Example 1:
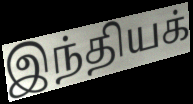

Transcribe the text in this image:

இந்தியக்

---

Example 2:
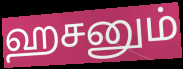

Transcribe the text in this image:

ஹசனும்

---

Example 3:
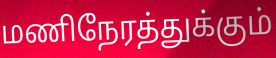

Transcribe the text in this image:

மணிநேரத்துக்கும்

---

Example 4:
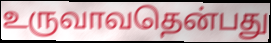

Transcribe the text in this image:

உருவாவதென்பது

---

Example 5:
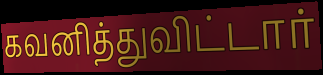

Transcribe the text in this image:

கவனித்துவிட்டார்